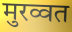
मुरव्वत